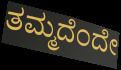
ತಮ್ಮದೆಂದೇ